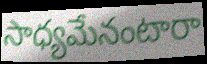
సాధ్యమేనంటారా